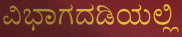
ವಿಭಾಗದಡಿಯಲ್ಲಿ